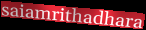
saiamrithadhara